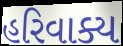
હરિવાક્ય